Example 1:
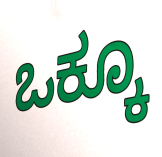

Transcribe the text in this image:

ಒಕ್ಕೂ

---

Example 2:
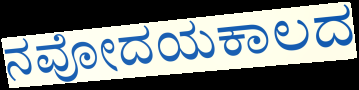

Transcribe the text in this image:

ನವೋದಯಕಾಲದ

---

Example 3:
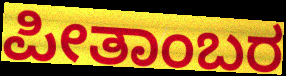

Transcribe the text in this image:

ಪೀತಾಂಬರ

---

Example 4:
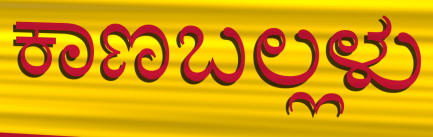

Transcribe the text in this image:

ಕಾಣಬಲ್ಲಳು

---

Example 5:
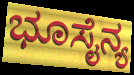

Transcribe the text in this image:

ಭೂಸೈನ್ಯ